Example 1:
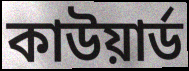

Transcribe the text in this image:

কাউয়ার্ড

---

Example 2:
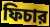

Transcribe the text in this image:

ফিচার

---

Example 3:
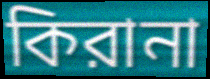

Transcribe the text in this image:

কিরানা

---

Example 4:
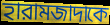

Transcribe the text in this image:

হারামজাদাকে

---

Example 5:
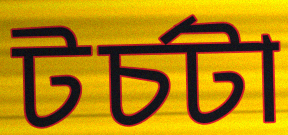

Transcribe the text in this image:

টর্চটা